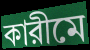
কারীমে